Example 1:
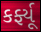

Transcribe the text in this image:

કર્ફ્યૂ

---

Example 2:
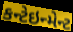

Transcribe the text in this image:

કન્ટેઇન્મેન્ટ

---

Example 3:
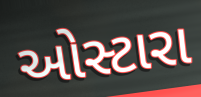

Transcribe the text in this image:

ઓસ્ટારા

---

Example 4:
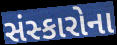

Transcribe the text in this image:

સંસ્કારોના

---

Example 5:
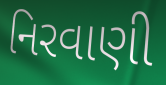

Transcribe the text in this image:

નિરવાણી